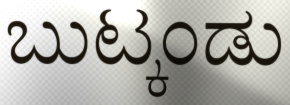
ಬುಟ್ಕಂಡು